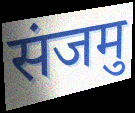
संजमु